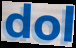
dol